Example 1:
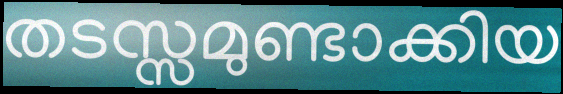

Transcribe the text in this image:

തടസ്സമുണ്ടാക്കിയ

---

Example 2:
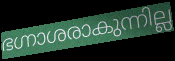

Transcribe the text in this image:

ഭഗ്നാശരാകുന്നില്ല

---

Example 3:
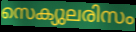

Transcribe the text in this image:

സെക്യുലരിസം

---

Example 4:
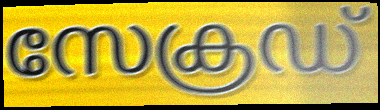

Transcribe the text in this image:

സേക്രഡ്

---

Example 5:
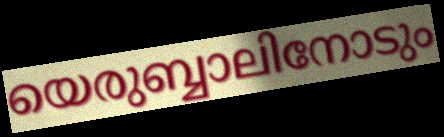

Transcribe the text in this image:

യെരുബ്ബാലിനോടും